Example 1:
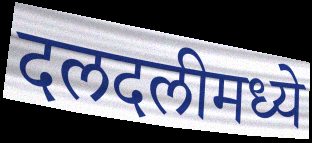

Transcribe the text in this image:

दलदलीमध्ये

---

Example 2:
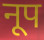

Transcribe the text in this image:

नूप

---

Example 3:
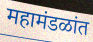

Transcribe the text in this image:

महामंडळांत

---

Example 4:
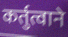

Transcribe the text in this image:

कर्तुत्वाने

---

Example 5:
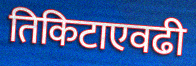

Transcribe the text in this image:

तिकिटाएवढी